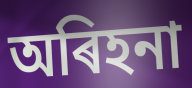
অৰিহনা